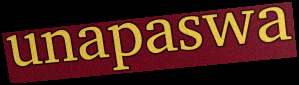
unapaswa